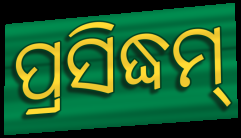
ପ୍ରସିଦ୍ଧମ୍